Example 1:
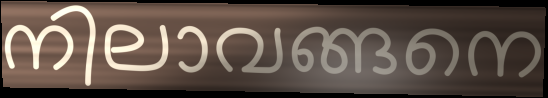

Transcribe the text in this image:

നിലാവങ്ങനെ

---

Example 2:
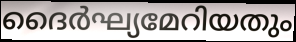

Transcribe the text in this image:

ദൈർഘ്യമേറിയതും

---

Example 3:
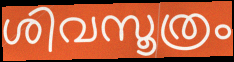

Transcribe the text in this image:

ശിവസൂത്രം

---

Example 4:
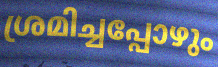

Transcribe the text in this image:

ശ്രമിച്ചപ്പോഴും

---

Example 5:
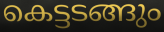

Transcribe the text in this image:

കെട്ടടങ്ങും